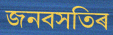
জনবসতিৰ